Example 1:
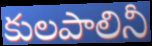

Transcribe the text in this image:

కులపాలినీ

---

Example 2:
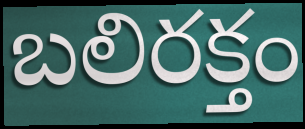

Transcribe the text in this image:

బలిరక్తం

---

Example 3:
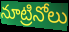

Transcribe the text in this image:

నూట్రినోలు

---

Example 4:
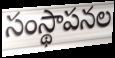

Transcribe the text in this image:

సంస్థాపనల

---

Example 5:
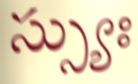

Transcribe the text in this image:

స్స్యుః